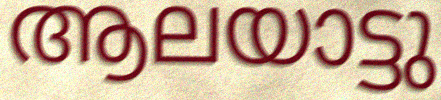
ആലയാട്ടു